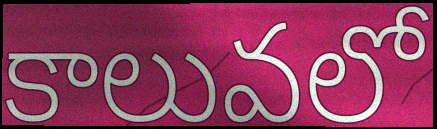
కాలువలో